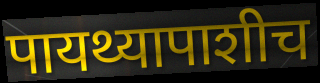
पायथ्यापाशीच